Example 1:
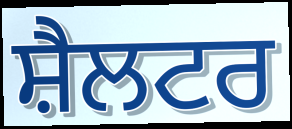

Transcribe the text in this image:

ਸ਼ੈਲਟਰ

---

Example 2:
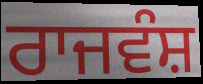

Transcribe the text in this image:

ਰਾਜਵੰਸ਼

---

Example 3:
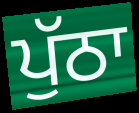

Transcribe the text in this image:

ਪੁੱਠਾ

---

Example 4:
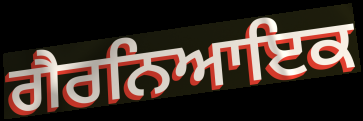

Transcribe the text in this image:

ਗੈਰਨਿਆਇਕ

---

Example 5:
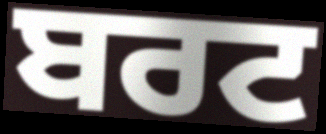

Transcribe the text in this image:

ਬਰਟ